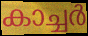
കാച്ചർ